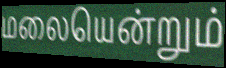
மலையென்றும்